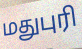
மதுபுரி